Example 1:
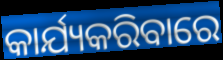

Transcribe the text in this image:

କାର୍ଯ୍ୟକରିବାରେ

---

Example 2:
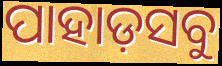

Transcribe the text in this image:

ପାହାଡ଼ସବୁ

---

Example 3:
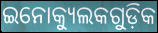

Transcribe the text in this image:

ଇନୋକ୍ଯୁଲକଗୁଡ଼ିକ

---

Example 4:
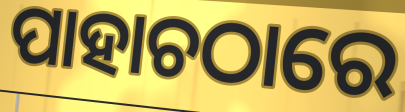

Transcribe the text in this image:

ପାହାଚଠାରେ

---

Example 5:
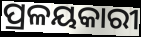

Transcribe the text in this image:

ପ୍ରଳୟକାରୀ